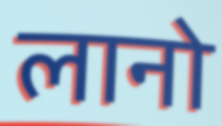
लानो